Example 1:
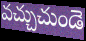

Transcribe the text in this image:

వచ్చుచుండె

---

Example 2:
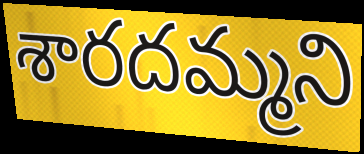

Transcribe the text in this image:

శారదమ్మని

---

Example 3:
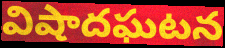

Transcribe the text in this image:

విషాదఘటన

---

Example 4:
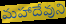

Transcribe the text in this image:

మహాదేవుని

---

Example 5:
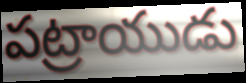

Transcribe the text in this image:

పట్రాయుడు